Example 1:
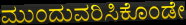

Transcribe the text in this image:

ಮುಂದುವರಿಸಿಕೊಂಡೇ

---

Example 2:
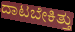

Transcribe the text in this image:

ದಾಟಬೇಕಿತ್ತು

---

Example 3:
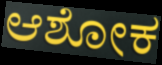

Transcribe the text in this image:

ಆಶೋಕ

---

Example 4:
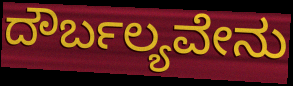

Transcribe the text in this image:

ದೌರ್ಬಲ್ಯವೇನು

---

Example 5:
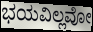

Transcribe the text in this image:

ಭಯವಿಲ್ಲವೋ